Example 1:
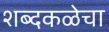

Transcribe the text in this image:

शब्दकळेचा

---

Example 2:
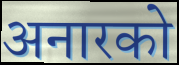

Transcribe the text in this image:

अनारको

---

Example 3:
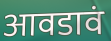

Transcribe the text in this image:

आवडावं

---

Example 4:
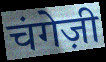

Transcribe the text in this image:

चंगेज़ी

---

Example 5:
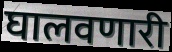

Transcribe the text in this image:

घालवणारी